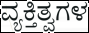
ವ್ಯಕ್ತಿತ್ವಗಳ